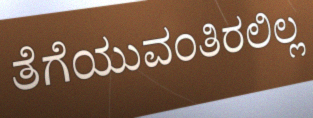
ತೆಗೆಯುವಂತಿರಲಿಲ್ಲ